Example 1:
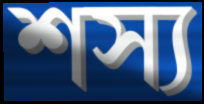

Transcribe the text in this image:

শস্য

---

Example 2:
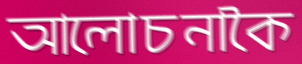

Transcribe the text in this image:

আলোচনাকৈ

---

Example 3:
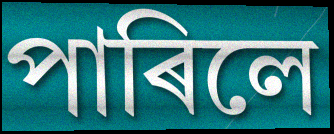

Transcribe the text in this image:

পাৰিলে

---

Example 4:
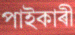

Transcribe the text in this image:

পাইকাৰী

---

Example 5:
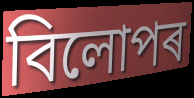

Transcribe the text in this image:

বিলোপৰ